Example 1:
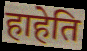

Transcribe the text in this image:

हाहेति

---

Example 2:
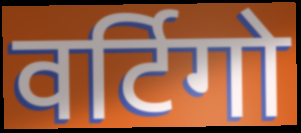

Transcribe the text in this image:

वर्टिगो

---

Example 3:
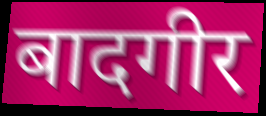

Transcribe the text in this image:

बादगीर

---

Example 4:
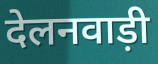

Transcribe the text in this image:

देलनवाड़ी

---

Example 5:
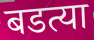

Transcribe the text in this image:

बडत्या